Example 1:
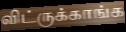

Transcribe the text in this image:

விட்ருக்காங்க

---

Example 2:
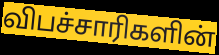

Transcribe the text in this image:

விபச்சாரிகளின்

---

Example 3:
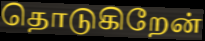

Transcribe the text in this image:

தொடுகிறேன்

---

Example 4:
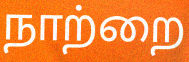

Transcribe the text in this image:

நாற்றை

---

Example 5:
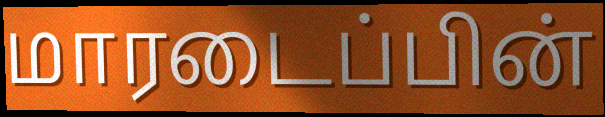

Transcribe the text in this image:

மாரடைப்பின்